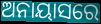
ଅନାୟାସରେ